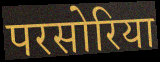
परसोरिया